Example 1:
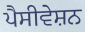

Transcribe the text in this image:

ਪੈਸੀਵੇਸ਼ਨ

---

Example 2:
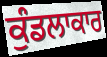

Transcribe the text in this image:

ਕੁੰਡਲਾਕਾਰ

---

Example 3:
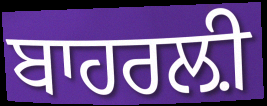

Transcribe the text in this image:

ਬਾਹਰਲ਼ੀ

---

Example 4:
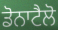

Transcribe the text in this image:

ਡੋਨਾਟੈਲੋ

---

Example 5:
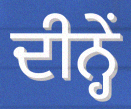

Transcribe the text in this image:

ਦੀਨ੍ਹੇਂ